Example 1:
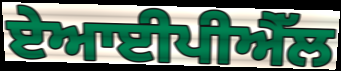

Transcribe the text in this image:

ਏਆਈਪੀਐੱਲ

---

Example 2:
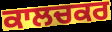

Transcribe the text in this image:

ਕਾਲਚਕਰ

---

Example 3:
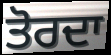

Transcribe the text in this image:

ਤੋਰਦਾ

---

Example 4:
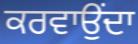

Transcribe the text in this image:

ਕਰਵਾਉਂਦਾ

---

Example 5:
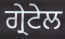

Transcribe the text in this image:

ਗ੍ਰੇਟੇਲ